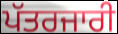
ਪੱਤਰਜਾਰੀ